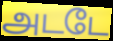
அடடே